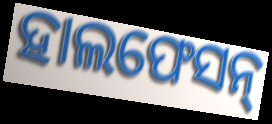
ହାଲଫେସନ୍